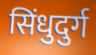
सिंधुदुर्ग